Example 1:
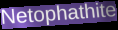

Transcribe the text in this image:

Netophathite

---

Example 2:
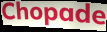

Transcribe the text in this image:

Chopade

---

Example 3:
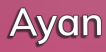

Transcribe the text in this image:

Ayan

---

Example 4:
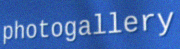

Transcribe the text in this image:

photogallery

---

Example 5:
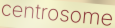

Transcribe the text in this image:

centrosome